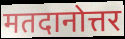
मतदानोत्तर